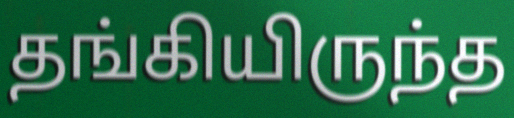
தங்கியிருந்த